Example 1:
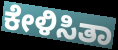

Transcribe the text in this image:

ಕೇಳಿಸಿತಾ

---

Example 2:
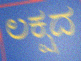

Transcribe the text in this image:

ಲಕ್ಷದ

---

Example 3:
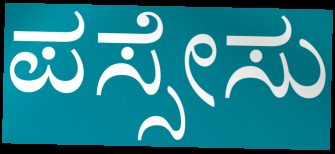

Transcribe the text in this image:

ಪಸ್ಸೇಸು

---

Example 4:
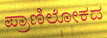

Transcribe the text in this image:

ಪ್ರಾಣಿಲೋಕದ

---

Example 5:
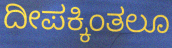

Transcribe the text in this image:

ದೀಪಕ್ಕಿಂತಲೂ